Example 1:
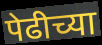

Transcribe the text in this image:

पेढीच्या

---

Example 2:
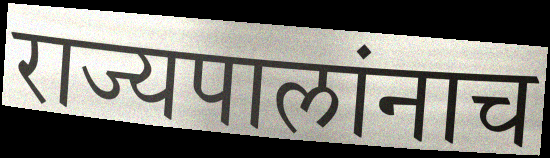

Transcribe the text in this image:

राज्यपालांनाच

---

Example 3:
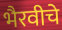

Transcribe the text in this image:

भैरवीचे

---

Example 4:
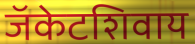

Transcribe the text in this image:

जॅकेटशिवाय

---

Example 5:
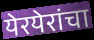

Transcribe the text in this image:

येरयेरांचा